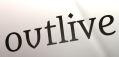
outlive